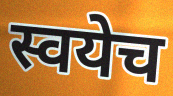
स्वयेच